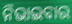
ନିଭାଇବାର